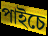
পাইচে